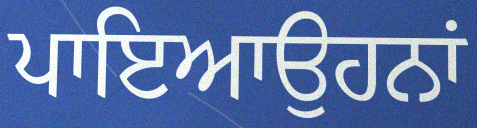
ਪਾਇਆਉਹਨਾਂ